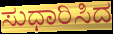
ಸುಧಾರಿಸಿದ